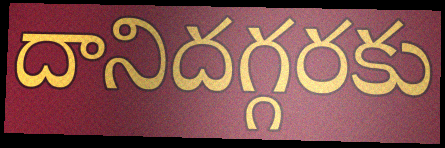
దానిదగ్గరకు